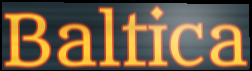
Baltica